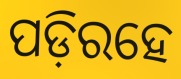
ପଡ଼ିରହେ